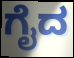
ಗೈದ